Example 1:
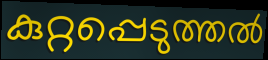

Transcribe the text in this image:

കുറ്റപ്പെടുത്തൽ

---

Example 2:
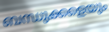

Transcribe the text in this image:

ബന്ധുക്കളെയും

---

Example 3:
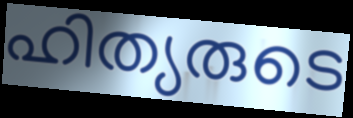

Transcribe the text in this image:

ഹിത്യരുടെ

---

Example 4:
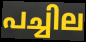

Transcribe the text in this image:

പച്ചില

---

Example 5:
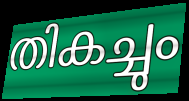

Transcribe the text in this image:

തികച്ചും